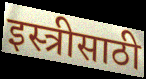
इस्त्रीसाठी